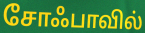
சோஃபாவில்